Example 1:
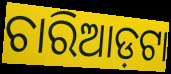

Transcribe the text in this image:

ଚାରିଆଡ଼ଟା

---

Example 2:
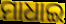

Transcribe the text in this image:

ମାଧାଇ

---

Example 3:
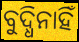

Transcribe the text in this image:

ବୁଦ୍ଧିନାହିଁ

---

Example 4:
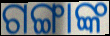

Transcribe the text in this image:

ଗଙ୍ଗାଙ୍କ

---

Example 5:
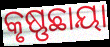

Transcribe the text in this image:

କୃଷ୍ଣଛାୟା